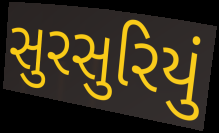
સુરસુરિયું